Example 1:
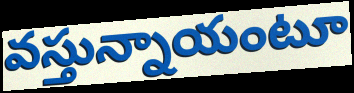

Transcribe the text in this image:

వస్తున్నాయంటూ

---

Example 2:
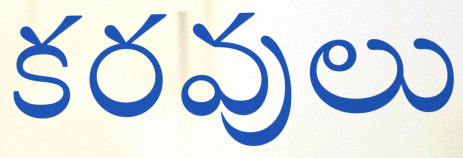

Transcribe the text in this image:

కరవులు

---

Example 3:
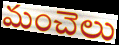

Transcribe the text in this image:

మంచెలు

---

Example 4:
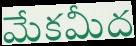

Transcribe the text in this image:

మేకమీద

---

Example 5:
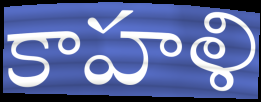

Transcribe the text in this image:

కాహళి